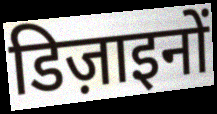
डिज़ाइनों